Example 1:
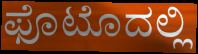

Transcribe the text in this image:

ಫೊಟೊದಲ್ಲಿ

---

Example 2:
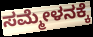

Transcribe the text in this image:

ಸಮ್ಮೇಳನಕ್ಕೆ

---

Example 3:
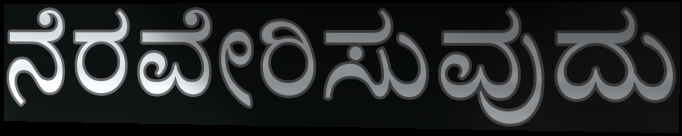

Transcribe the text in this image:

ನೆರವೇರಿಸುವುದು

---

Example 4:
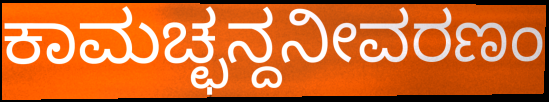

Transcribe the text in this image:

ಕಾಮಚ್ಛನ್ದನೀವರಣಂ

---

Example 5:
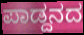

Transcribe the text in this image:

ಪಾಡ್ದನದ